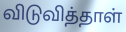
விடுவித்தாள்